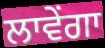
ਲਾਵੇਂਗਾ